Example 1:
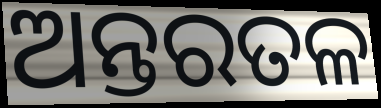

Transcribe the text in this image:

ଅନ୍ତରତଳ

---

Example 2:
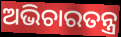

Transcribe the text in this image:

ଅଭିଚାରତନ୍ତ୍ର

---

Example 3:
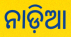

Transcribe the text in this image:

ନାଡ଼ିଆ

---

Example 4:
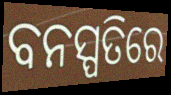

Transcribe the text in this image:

ବନସ୍ପତିରେ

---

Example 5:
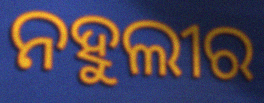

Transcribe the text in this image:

ନହୁଲୀର